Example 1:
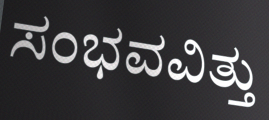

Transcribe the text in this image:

ಸಂಭವವಿತ್ತು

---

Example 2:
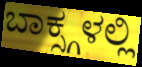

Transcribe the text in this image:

ಬಾಕ್ಸ್ಗಳಲ್ಲಿ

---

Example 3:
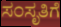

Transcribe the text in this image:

ಸಂಸೃತಿಗೆ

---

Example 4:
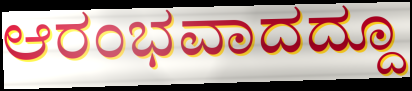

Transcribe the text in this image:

ಆರಂಭವಾದದ್ದೂ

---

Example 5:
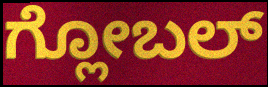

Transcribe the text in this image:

ಗ್ಲೋಬಲ್